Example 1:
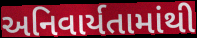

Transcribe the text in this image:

અનિવાર્યતામાંથી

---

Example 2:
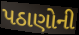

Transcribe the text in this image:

પઠાણોની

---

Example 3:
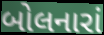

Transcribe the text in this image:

બોલનારાં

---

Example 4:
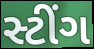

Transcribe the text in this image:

સ્ટીંગ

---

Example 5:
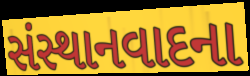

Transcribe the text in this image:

સંસ્થાનવાદના